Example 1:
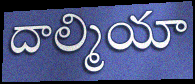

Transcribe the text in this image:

దాల్మియా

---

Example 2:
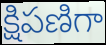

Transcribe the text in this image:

క్షిపణిగా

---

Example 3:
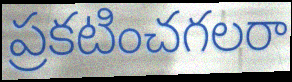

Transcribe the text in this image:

ప్రకటించగలరా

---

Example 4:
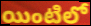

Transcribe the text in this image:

యింటిలో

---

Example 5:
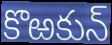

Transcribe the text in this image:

కొఱకున్